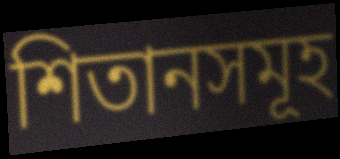
শিতানসমূহ